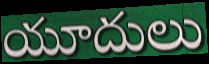
యూదులు